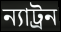
ন্যাট্রন